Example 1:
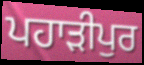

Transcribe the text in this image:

ਪਹਾੜੀਪੁਰ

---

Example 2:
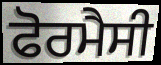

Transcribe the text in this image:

ਫੋਰਮੈਸੀ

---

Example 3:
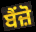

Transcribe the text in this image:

ਬੈਂਜ਼ੋ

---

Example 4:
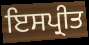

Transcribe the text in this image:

ਇਸਪ੍ਰੀਤ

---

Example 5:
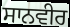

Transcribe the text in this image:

ਸਾਨਵੀਰ